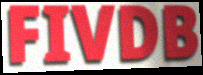
FIVDB